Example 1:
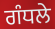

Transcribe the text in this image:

ਗੰਧਲੇ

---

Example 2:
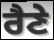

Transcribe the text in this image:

ਰੈਣੇ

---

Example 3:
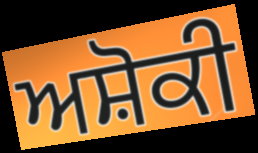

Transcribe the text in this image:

ਅਸ਼ੋਕੀ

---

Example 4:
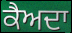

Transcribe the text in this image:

ਕੈਅਦਾ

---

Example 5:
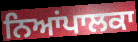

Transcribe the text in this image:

ਨਿਆਂਪਾਲਕਾ